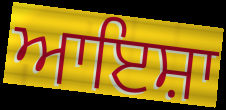
ਆਇਸ਼ਾ